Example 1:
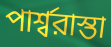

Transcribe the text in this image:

পার্শ্বরাস্তা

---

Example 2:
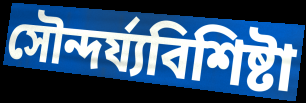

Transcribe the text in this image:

সৌন্দর্য্যবিশিষ্টা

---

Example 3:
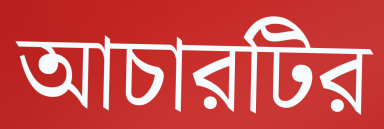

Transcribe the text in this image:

আচারটির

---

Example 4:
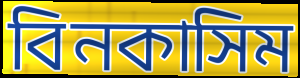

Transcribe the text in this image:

বিনকাসিম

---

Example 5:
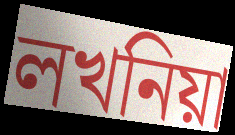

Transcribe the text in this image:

লখনিয়া